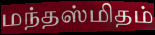
மந்தஸ்மிதம்